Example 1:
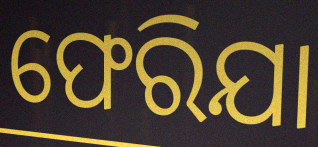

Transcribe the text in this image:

ଫେରିଯା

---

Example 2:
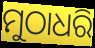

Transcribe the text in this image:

ମୁଠାଧରି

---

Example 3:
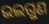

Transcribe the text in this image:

ଭଲଗୁଣ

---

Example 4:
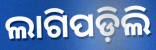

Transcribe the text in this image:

ଲାଗିପଡ଼ିଲି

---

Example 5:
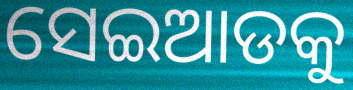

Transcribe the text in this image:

ସେଇଆଡକୁ